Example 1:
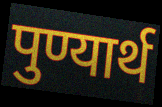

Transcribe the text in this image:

पुण्यार्थ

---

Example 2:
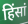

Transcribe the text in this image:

हिंसां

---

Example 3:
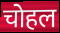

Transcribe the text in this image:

चोहल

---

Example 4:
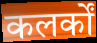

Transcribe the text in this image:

कलर्कों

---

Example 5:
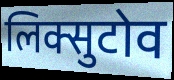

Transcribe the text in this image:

लिक्सुटोव